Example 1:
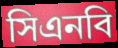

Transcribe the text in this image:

সিএনবি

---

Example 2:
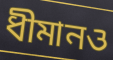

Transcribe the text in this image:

ধীমানও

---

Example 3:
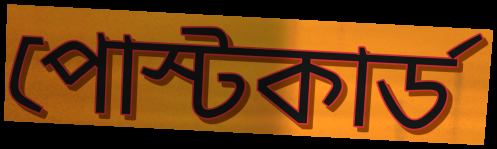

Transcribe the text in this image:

পোস্টকার্ড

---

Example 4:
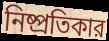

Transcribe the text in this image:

নিষ্প্রতিকার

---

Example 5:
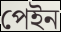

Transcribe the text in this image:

পেইন